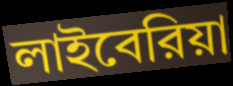
লাইবেরিয়া